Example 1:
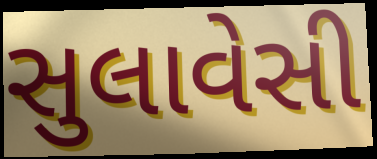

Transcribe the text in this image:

સુલાવેસી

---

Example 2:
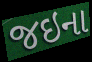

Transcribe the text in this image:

જઇના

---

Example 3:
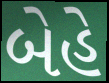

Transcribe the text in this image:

બેહે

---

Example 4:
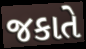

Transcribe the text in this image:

જકાતે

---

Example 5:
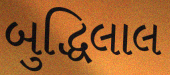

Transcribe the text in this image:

બુદ્ધિલાલ